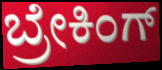
ಬ್ರೇಕಿಂಗ್